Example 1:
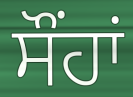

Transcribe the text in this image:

ਸੌਂਹਾਂ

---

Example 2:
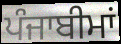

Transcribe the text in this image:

ਪੰਜਾਬੀਮਾਂ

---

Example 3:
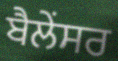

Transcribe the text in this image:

ਬੈਲੇਂਸਰ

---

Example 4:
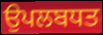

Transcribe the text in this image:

ਉਪਲਬਧਤ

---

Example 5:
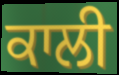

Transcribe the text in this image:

ਕਾਲੀ